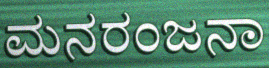
ಮನರಂಜನಾ